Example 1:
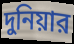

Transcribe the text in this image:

দুনিয়ার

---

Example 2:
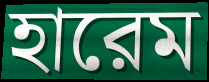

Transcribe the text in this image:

হারেম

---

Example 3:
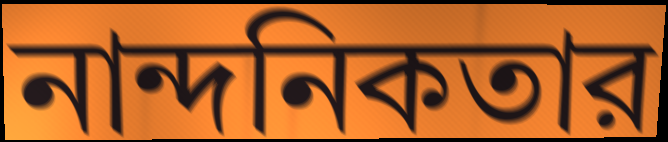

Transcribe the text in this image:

নান্দনিকতার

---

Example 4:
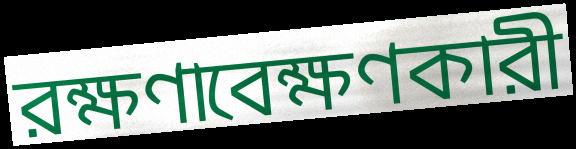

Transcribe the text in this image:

রক্ষণাবেক্ষণকারী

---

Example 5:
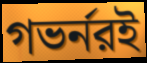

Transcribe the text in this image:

গভর্নরই